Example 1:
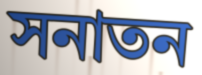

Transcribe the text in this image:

সনাতন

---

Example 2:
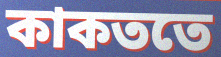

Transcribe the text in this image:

কাকততে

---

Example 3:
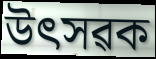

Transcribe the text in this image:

উৎসৱক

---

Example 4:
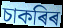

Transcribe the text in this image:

চাকৰিৰ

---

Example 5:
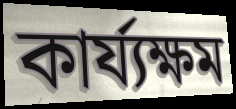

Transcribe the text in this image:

কাৰ্য্যক্ষম